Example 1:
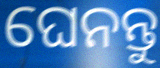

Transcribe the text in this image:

ଘେନନ୍ତୁ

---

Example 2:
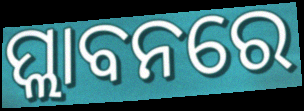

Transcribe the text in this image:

ପ୍ଲାବନରେ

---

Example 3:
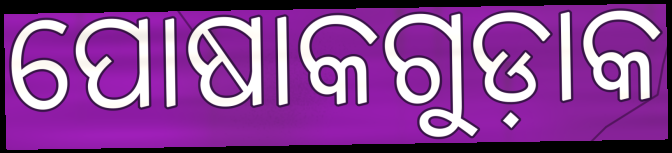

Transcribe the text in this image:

ପୋଷାକଗୁଡ଼ାକ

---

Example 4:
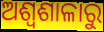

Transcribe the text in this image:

ଅଶ୍ୱଶାଳାରୁ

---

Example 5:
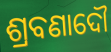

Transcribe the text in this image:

ଶ୍ରବଣାଦୌ